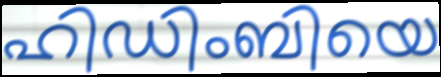
ഹിഡിംബിയെ